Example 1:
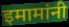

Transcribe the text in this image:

इमामांनी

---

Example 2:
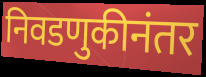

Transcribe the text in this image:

निवडणुकीनंतर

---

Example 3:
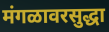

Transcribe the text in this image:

मंगळावरसुद्धा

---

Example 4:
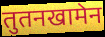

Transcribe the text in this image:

तुतनखामेन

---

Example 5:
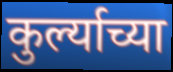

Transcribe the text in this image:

कुर्ल्याच्या